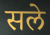
सले